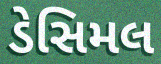
ડેસિમલ